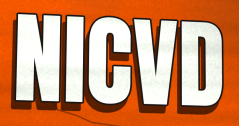
NICVD